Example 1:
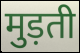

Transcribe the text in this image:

मुड़ती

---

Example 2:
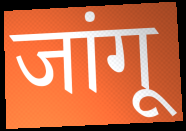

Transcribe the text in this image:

जांगू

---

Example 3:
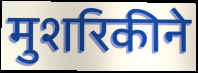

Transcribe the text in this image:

मुशरिकीने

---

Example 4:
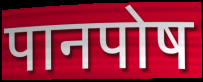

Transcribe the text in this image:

पानपोष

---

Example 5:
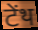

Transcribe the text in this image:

टेंथ